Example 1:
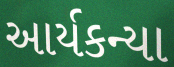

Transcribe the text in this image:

આર્યકન્યા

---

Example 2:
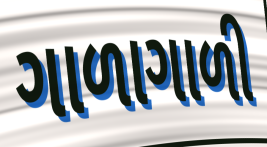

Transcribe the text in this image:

ગાળાગાળી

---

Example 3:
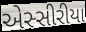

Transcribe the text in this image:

એસ્સીરીયા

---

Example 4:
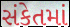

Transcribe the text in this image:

સંકેતમાં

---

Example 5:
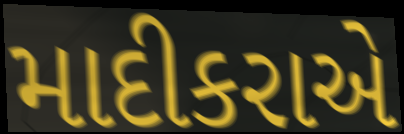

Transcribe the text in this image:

માદીકરાએ